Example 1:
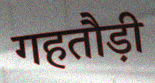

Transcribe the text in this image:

गहतौड़ी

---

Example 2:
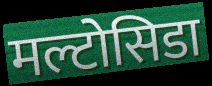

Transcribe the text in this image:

मल्टोसिडा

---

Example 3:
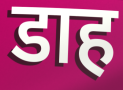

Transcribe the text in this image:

डाह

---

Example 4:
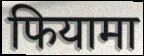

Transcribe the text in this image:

फियामा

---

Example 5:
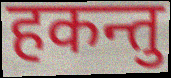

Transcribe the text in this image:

हकन्तु